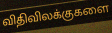
விதிவிலக்குகளை